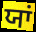
ਯਾਂ